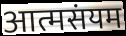
आत्मसंयम